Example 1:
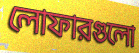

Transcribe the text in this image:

লোফারগুলো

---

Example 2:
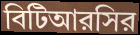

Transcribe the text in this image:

বিটিআরসির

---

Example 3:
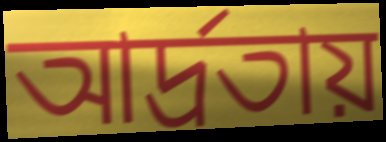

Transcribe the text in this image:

আর্দ্রতায়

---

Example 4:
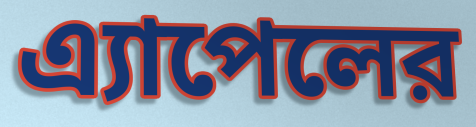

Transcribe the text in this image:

এ্যাপেলের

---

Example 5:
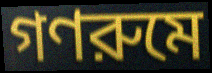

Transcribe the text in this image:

গণরুমে